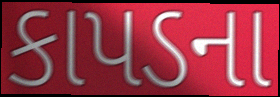
કાપડના